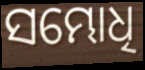
ସମ୍ଭୋଧି